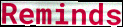
Reminds